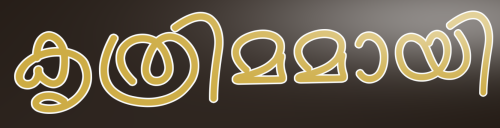
കൃത്രിമമായി